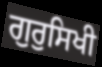
ਗੁਰੁਸਿਖੀ